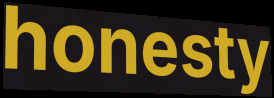
honesty